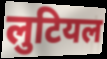
लुटियल